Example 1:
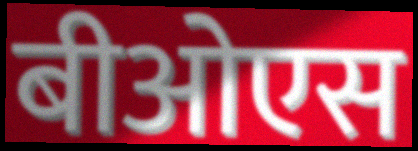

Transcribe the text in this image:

बीओएस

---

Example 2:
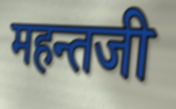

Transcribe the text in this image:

महन्तजी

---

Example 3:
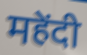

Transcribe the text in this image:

महेंदी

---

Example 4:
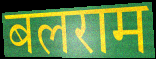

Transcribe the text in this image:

बलराम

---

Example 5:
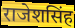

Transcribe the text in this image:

राजेशसिंह